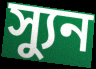
স্যুন